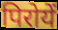
पिरोयें